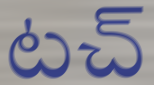
టచ్